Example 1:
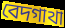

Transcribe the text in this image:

বেদগাথা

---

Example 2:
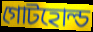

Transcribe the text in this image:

গোটহোল্ড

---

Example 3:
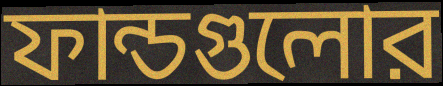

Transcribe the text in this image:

ফান্ডগুলোর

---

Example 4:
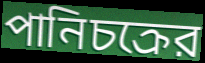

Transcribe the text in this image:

পানিচক্রের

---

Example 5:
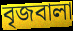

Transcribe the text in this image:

বৃজবালা